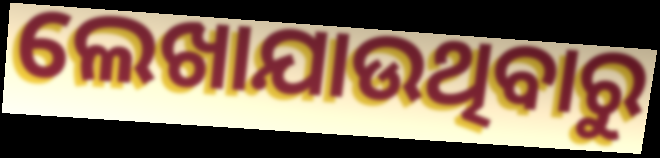
ଲେଖାଯାଉଥିବାରୁ